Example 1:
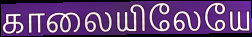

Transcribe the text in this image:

காலையிலேயே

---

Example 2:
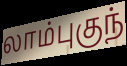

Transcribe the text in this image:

லாம்புகுந்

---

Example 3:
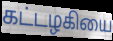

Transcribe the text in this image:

கட்டழகியை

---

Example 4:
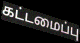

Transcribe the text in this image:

கட்டமைப்பு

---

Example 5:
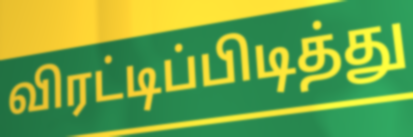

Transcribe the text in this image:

விரட்டிப்பிடித்து